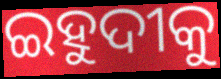
ଇହୁଦୀକୁ